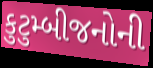
કુટુમ્બીજનોની